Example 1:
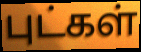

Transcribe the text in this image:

புட்கள்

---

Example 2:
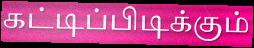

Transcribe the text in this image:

கட்டிப்பிடிக்கும்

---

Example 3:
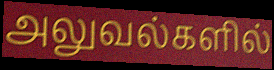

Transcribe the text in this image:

அலுவல்களில்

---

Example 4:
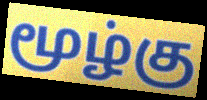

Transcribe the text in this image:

மூழ்கு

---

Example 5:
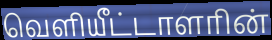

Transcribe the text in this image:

வெளியீட்டாளரின்